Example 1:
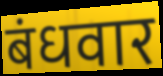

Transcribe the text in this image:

बंधवार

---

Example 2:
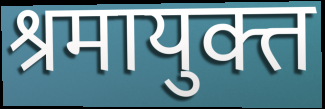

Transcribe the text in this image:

श्रमायुक्त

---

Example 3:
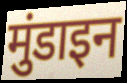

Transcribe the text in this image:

मुंडाइन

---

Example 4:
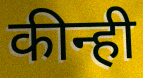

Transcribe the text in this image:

कीन्ही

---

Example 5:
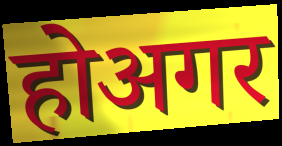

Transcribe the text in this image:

होअगर